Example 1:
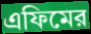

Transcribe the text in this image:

এফিমের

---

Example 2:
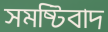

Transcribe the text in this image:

সমষ্টিবাদ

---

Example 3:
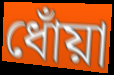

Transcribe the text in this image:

ধোঁয়া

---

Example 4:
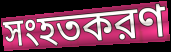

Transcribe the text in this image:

সংহতকরণ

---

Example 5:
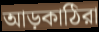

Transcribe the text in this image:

আড়কাঠিরা